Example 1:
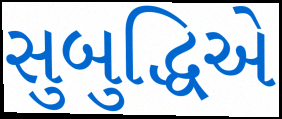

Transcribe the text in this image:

સુબુદ્ધિએ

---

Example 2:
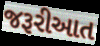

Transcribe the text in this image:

જરૂરીઆત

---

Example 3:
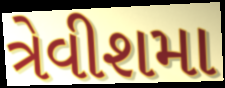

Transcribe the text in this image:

ત્રેવીશમા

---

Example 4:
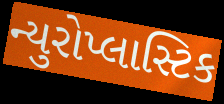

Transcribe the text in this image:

ન્યુરોપ્લાસ્ટિક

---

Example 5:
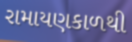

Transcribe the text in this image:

રામાયણકાળથી